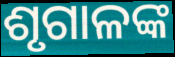
ଶୃଗାଳଙ୍କ